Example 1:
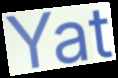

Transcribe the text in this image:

Yat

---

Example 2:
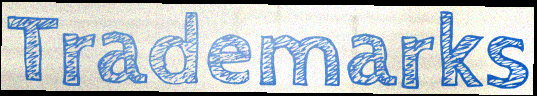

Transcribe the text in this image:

Trademarks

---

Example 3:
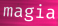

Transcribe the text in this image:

magia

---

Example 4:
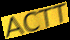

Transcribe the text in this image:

ACTT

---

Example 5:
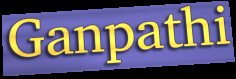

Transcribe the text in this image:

Ganpathi